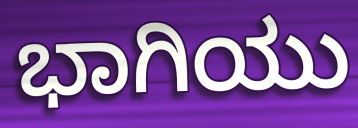
ಭಾಗಿಯು